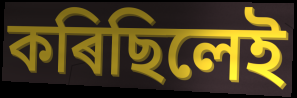
কৰিছিলেই